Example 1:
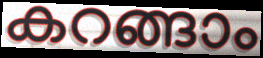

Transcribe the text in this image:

കറങ്ങാം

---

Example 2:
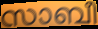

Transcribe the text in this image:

സാബീ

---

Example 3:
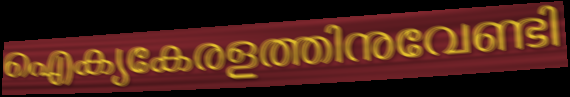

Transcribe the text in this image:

ഐക്യകേരളത്തിനുവേണ്ടി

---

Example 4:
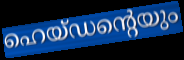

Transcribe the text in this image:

ഹെയ്ഡന്റെയും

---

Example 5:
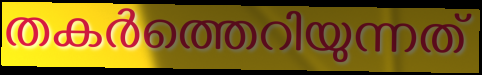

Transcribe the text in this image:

തകർത്തെറിയുന്നത്